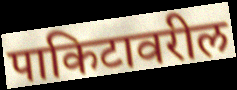
पाकिटावरील